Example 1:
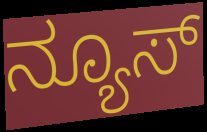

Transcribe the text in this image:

ನ್ಯೂಸ್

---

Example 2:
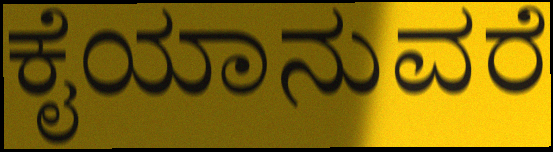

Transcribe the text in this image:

ಕೈಯಾನುವರೆ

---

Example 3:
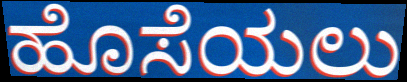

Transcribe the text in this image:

ಹೊಸೆಯಲು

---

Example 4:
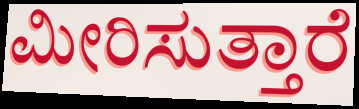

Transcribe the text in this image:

ಮೀರಿಸುತ್ತಾರೆ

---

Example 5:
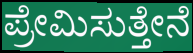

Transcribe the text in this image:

ಪ್ರೇಮಿಸುತ್ತೇನೆ